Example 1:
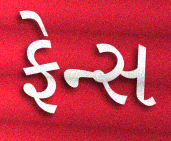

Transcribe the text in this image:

ફેન્સ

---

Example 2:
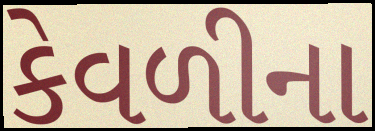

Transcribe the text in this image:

કેવળીના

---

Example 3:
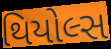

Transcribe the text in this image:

થિયોલ્સ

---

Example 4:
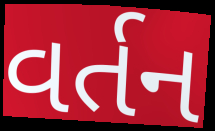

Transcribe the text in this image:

વર્તન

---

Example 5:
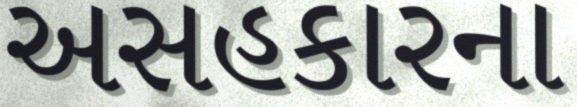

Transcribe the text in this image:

અસહકારના